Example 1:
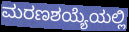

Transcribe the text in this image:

ಮರಣಶಯ್ಯೆಯಲ್ಲಿ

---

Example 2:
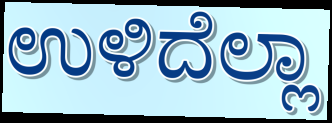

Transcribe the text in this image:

ಉಳಿದೆಲ್ಲಾ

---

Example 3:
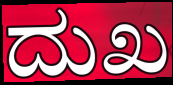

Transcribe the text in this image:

ದುಖ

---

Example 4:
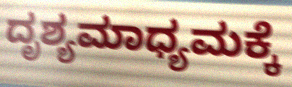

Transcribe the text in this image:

ದೃಶ್ಯಮಾಧ್ಯಮಕ್ಕೆ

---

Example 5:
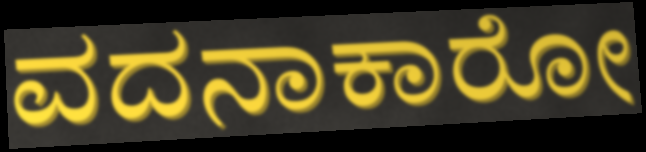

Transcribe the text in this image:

ವದನಾಕಾರೋ